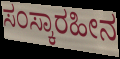
ಸಂಸ್ಕಾರಹೀನ